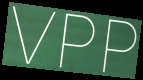
VPP